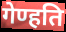
गेण्हति